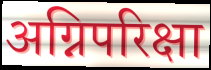
अग्निपरिक्षा